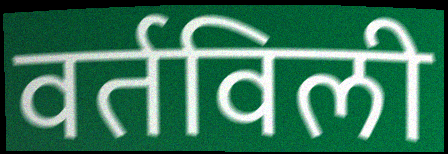
वर्तविली